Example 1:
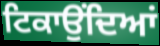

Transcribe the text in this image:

ਟਿਕਾਉਂਦਿਆਂ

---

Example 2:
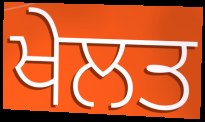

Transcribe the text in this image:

ਖੇਲਤ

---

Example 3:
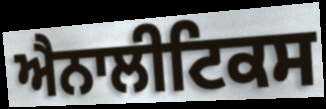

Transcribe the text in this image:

ਐਨਾਲੀਟਿਕਸ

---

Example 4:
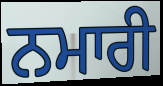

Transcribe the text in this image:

ਨਮਾਰੀ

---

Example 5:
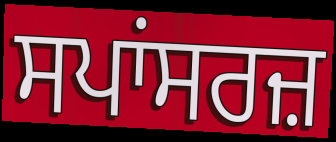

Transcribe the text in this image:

ਸਪਾਂਸਰਜ਼